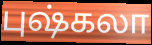
புஷ்கலா